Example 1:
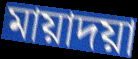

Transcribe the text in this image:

মায়াদয়া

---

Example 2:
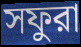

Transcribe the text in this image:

সফুরা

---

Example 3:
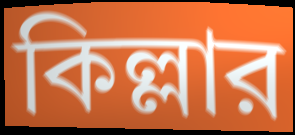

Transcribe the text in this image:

কিল্লার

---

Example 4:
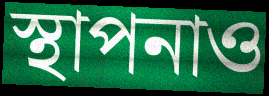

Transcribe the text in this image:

স্থাপনাও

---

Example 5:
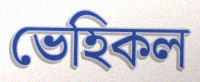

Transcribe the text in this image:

ভেহিকল